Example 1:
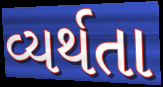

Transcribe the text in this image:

વ્યર્થતા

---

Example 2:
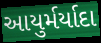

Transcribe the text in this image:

આયુર્મર્યાદા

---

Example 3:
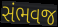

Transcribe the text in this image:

સંભવજ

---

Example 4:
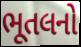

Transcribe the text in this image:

ભૂતલનો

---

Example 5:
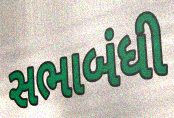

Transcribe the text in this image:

સભાબંધી